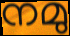
നമു